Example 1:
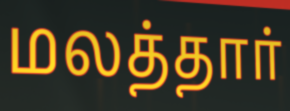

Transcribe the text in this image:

மலத்தார்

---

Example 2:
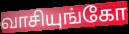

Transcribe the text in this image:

வாசியுங்கோ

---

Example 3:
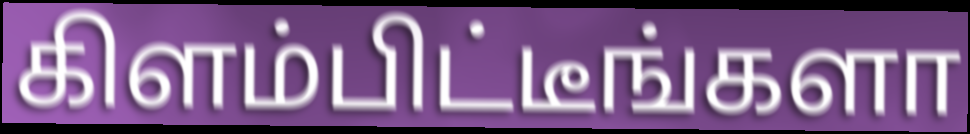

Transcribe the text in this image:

கிளம்பிட்டீங்களா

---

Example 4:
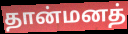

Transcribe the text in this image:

தான்மனத்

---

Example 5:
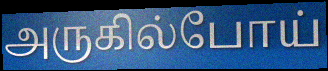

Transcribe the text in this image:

அருகில்போய்